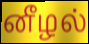
னீழல்